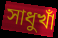
সাধুখাঁ